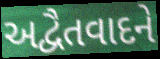
અદ્વૈતવાદને